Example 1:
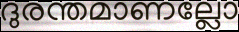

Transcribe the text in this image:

ദുരന്തമാണല്ലോ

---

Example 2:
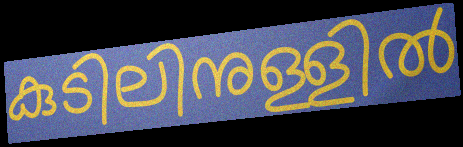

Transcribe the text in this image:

കുടിലിനുള്ളിൽ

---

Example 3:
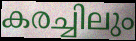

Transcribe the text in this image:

കരച്ചിലും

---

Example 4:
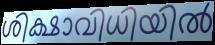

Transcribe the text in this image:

ശിക്ഷാവിധിയിൽ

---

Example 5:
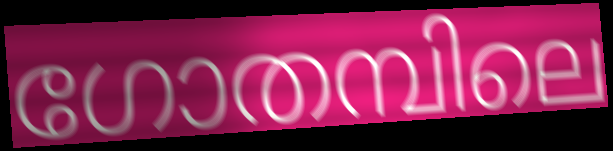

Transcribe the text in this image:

ഗോതമ്പിലെ